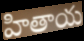
హితాయ